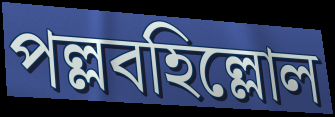
পল্লবহিল্লোল